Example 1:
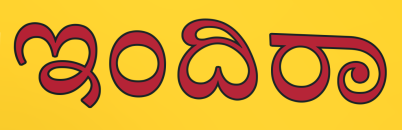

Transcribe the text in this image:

ಇಂದಿರಾ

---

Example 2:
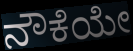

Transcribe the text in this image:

ನೌಕೆಯೇ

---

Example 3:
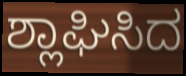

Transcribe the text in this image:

ಶ್ಲಾಘಿಸಿದ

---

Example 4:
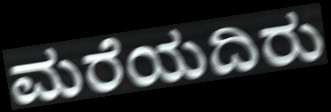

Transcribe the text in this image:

ಮರೆಯದಿರು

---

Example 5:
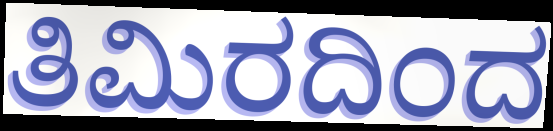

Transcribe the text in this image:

ತಿಮಿರದಿಂದ